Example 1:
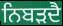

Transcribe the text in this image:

ਨਿਬੜਦੈ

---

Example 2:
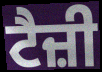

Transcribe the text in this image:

ਟੈਜ਼ੀ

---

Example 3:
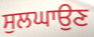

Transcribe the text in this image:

ਸੁਲਘਾਉਣ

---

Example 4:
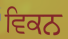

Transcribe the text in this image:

ਵਿਕਨ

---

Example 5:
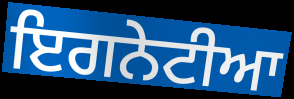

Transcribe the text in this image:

ਇਗਨੇਟੀਆ